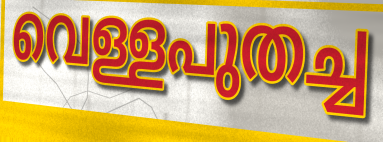
വെള്ളപുതച്ച